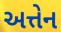
અત્તેન